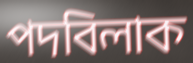
পদবিলাক